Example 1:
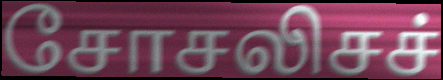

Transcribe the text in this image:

சோசலிசச்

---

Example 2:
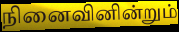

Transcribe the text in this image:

நினைவினின்றும்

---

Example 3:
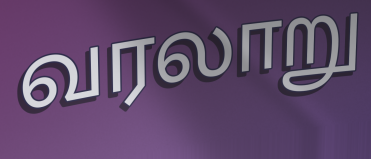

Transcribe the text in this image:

வரலாறு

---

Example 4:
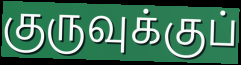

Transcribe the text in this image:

குருவுக்குப்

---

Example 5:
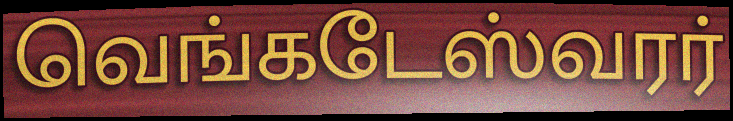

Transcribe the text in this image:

வெங்கடேஸ்வரர்